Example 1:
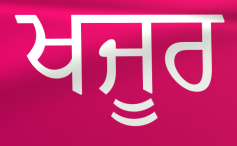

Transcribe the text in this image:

ਖਜੂਰ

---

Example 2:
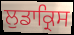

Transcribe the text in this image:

ਲੁਡਾਕ੍ਰਿਸ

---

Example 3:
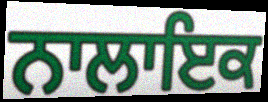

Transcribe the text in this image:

ਨਾਲਾਇਕ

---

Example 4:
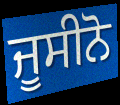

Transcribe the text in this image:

ਜੂਸੀਨੋ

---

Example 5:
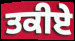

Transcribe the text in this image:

ਤਕੀਏ